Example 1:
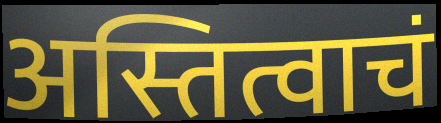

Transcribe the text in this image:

अस्तित्वाचं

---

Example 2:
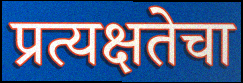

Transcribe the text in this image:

प्रत्यक्षतेचा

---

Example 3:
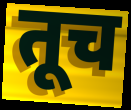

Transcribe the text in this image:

तूच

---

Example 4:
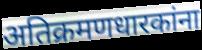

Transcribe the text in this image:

अतिक्रमणधारकांना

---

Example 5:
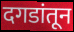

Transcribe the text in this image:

दगडांतून